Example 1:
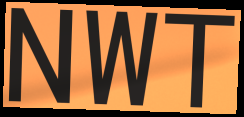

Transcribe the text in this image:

NWT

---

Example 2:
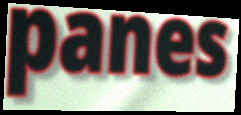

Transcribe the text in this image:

panes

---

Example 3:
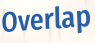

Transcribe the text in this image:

Overlap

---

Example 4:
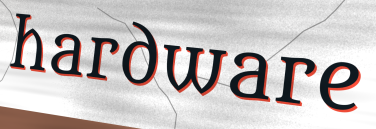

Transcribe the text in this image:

hardware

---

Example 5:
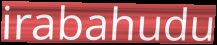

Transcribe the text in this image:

irabahudu